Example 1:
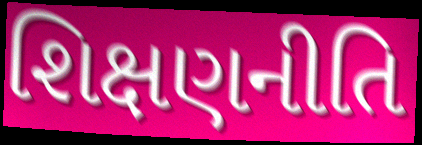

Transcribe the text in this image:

શિક્ષણનીતિ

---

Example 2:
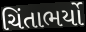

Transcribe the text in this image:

ચિંતાભર્યો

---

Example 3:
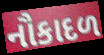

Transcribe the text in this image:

નૌકાદળ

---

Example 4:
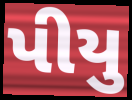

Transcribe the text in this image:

પીયુ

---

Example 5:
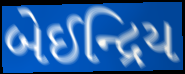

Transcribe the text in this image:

બેઈન્દ્રિય